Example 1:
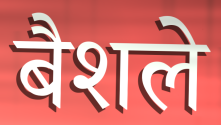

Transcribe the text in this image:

बैशले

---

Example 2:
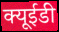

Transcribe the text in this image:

क्यूईडी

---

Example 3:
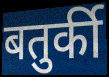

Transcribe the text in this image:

बतुर्की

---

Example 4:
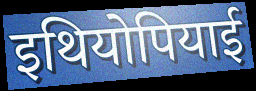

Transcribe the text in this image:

इथियोपियाई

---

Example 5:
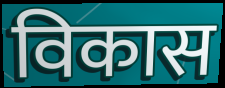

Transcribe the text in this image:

विकास